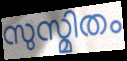
സുസ്മിതം